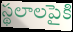
స్థలాలపైకి